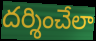
దర్శించేలా